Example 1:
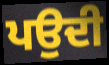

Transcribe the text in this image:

ਪਉਦੀ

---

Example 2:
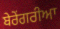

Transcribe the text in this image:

ਬੇਰੇਂਗਰੀਆ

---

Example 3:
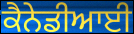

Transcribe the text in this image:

ਕੈਨੇਡੀਆਈ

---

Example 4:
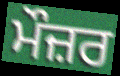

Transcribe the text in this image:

ਮੌਜ਼ਰ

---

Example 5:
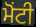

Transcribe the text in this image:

ਮੋਂਟੀ